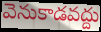
వెనుకాడవద్దు